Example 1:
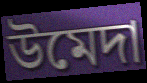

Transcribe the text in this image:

উমেদা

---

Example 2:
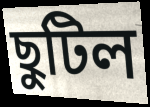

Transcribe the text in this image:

ছুটিল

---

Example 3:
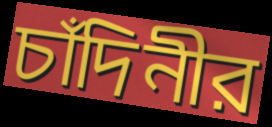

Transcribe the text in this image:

চাঁদিনীর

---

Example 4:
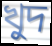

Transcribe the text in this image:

খুদ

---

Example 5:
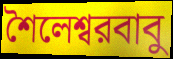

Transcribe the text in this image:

শৈলেশ্বরবাবু